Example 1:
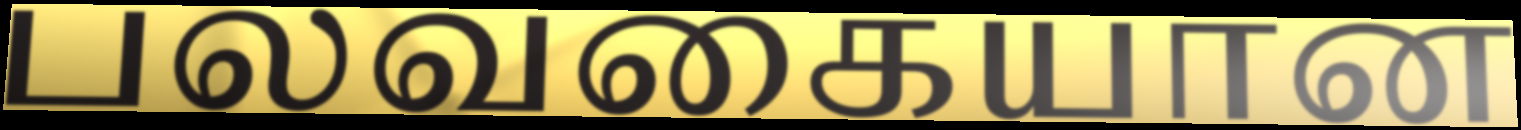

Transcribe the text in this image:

பலவகையான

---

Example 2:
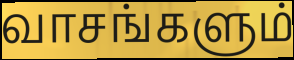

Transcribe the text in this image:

வாசங்களும்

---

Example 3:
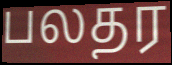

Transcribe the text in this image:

பலதர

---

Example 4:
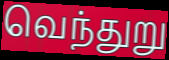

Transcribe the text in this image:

வெந்துறு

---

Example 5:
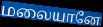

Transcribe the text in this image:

மலையானே